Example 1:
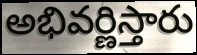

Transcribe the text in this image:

అభివర్ణిస్తారు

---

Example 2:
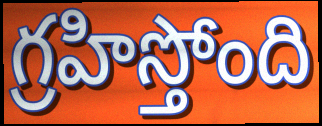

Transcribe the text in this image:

గ్రహిస్తోంది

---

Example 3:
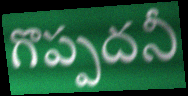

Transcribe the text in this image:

గొప్పదనీ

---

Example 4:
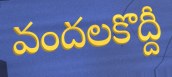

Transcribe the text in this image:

వందలకొద్దీ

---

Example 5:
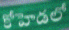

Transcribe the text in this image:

కోహెడలో